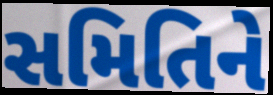
સમિતિને